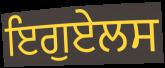
ਇਗੁਏਲਸ